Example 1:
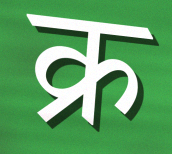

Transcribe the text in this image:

क्र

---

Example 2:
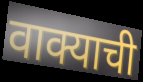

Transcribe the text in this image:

वाक्याची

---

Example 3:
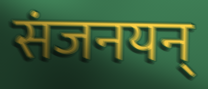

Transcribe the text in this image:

संजनयन्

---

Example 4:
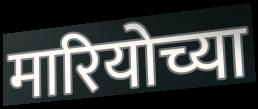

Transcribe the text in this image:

मारियोच्या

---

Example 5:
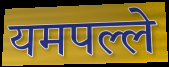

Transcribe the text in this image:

यमपल्ले